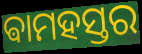
ଵାମହସ୍ତର